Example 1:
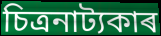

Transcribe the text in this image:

চিত্ৰনাট্যকাৰ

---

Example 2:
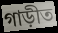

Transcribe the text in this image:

গাড়ীত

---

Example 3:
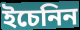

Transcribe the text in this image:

ইচেনিন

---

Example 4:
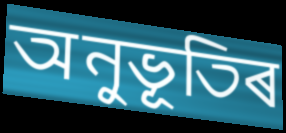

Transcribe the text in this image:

অনুভূতিৰ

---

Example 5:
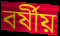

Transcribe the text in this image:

বৰ্ষীয়